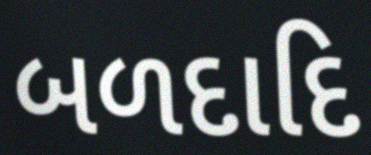
બળદાદિ